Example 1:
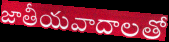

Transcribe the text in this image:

జాతీయవాదాలతో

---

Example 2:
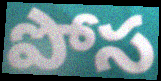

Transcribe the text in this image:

పోస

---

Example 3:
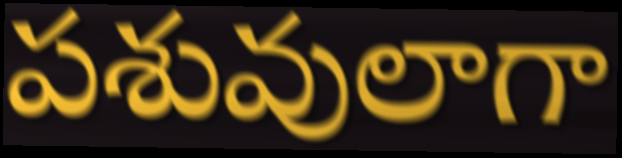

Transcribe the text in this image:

పశువులాగా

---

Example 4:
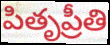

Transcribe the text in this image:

పితృప్రీతి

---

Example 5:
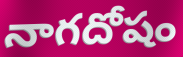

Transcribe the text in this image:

నాగదోషం